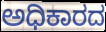
ಅಧಿಕಾರದ